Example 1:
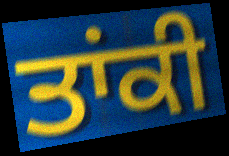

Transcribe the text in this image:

ਤਾਂਕੀ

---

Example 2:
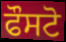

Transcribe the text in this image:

ਫੌਸਟੋ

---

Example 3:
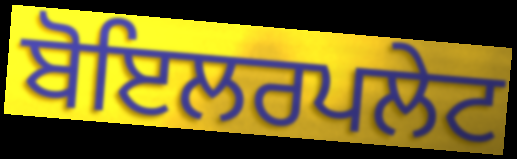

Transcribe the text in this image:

ਬੋਇਲਰਪਲੇਟ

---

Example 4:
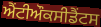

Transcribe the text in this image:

ਐਂਟੀਔਕਸੀਡੈਂਟਸ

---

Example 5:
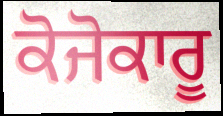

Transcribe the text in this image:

ਕੋਜੋਕਾਰੂ